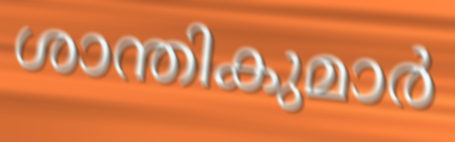
ശാന്തികുമാർ